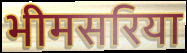
भीमसरिया